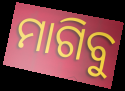
ମାଗିବୁ